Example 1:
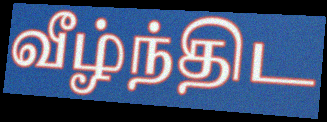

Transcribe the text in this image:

வீழ்ந்திட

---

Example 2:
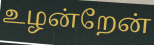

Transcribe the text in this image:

உழன்றேன்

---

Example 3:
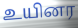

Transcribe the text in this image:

உயினர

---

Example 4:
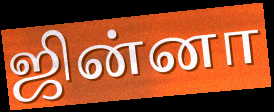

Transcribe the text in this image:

ஜின்னா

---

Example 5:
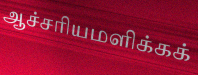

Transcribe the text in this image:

ஆச்சரியமளிக்கக்